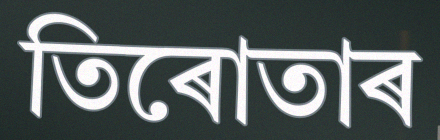
তিৰোতাৰ